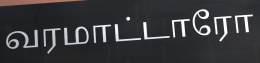
வரமாட்டாரோ